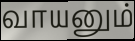
வாயனும்